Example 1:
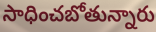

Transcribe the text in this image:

సాధించబోతున్నారు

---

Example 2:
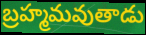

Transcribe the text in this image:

బ్రహ్మమవుతాడు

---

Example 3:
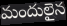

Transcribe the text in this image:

మందులైన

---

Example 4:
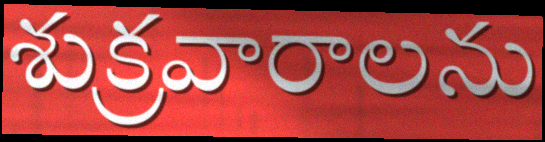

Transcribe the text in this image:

శుక్రవారాలను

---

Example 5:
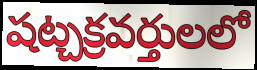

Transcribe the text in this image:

షట్చక్రవర్తులలో